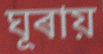
ঘূৰায়